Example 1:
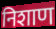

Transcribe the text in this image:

निशाण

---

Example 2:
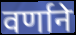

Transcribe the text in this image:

वर्णाने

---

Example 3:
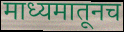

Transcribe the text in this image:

माध्यमातूनच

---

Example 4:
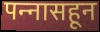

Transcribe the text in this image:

पन्नासहून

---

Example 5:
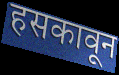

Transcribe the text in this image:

हसकावून